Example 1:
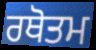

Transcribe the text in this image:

ਰਥੋਤਮ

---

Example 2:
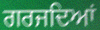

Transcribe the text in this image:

ਗਰਜਦਿਆਂ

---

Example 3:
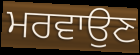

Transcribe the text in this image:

ਮਰਵਾਉਣ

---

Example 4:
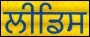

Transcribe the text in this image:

ਲੀਡਿਸ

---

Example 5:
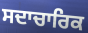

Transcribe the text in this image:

ਸਦਾਚਾਰਿਕ